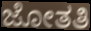
ಜೋತತಿ